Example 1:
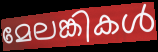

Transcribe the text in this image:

മേലങ്കികൾ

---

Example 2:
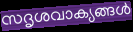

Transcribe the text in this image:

സദൃശവാക്യങ്ങൾ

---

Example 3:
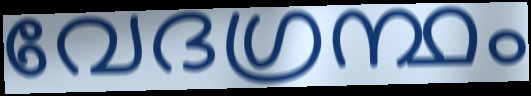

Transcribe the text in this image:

വേദഗ്രന്ഥം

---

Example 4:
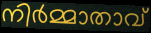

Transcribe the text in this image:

നിർമ്മാതാവ്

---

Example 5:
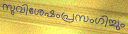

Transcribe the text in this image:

സുവിശേഷംപ്രസംഗിച്ചും